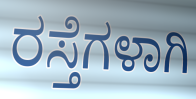
ರಸ್ತೆಗಳಾಗಿ